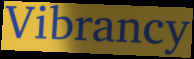
Vibrancy